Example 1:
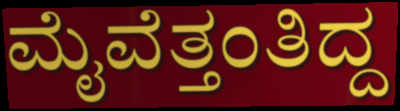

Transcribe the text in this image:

ಮೈವೆತ್ತಂತಿದ್ದ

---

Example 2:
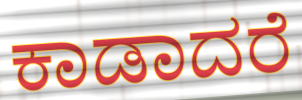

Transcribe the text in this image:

ಕಾಡಾದರೆ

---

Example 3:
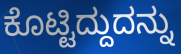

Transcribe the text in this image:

ಕೊಟ್ಟಿದ್ದುದನ್ನು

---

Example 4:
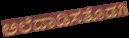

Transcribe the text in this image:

ಅಲೆದಾಡಿಸತೊಡಗಿ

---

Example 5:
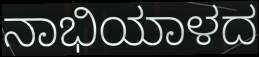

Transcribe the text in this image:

ನಾಭಿಯಾಳದ